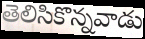
తెలిసికొన్నవాడు